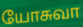
யோசுவா